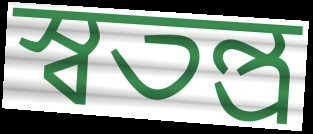
স্বতন্ত্র